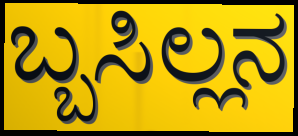
ಬ್ಬಸಿಲ್ಲನ